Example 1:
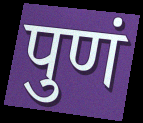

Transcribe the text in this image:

पुणं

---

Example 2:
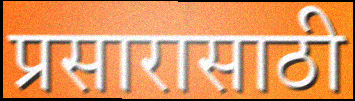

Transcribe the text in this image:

प्रसारासाठी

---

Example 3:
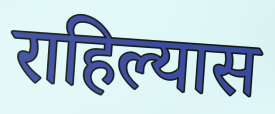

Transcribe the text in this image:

राहिल्यास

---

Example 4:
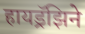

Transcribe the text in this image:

हायड्रॅझिने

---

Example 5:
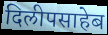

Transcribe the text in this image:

दिलीपसाहेब